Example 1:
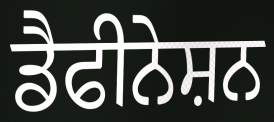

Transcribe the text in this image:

ਡੈਫੀਨੇਸ਼ਨ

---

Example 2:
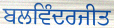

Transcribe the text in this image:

ਬਲਵਿੰਦਰਜੀਤ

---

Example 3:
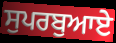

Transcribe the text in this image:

ਸੁਪਰਬੁਆਏ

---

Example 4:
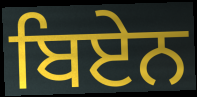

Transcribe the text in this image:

ਬਿਏਨ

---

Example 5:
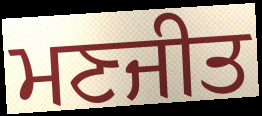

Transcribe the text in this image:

ਮਣਜੀਤ